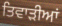
ਤਿਵਾੜੀਆਂ